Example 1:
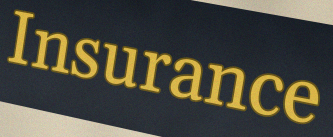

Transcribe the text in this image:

Insurance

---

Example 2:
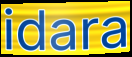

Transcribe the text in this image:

idara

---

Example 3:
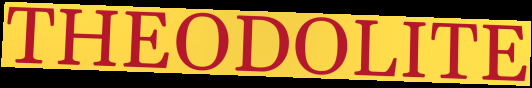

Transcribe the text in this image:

THEODOLITE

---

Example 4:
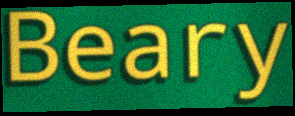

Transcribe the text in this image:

Beary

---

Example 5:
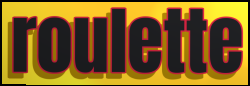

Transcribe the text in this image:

roulette